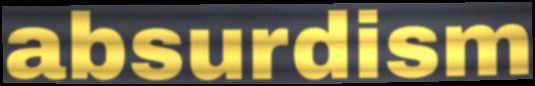
absurdism